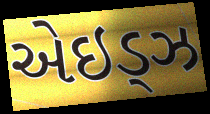
એઇડ્ઝ